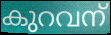
കുറവന്